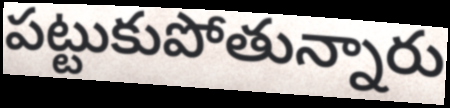
పట్టుకుపోతున్నారు